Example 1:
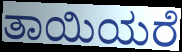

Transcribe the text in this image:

ತಾಯಿಯರೆ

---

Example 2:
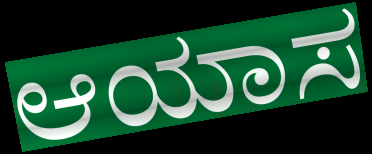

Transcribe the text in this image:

ಆಯಾಸ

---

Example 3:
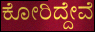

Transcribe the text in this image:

ಕೋರಿದ್ದೇವೆ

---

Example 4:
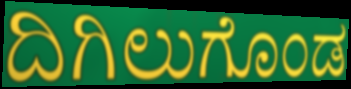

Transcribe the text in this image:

ದಿಗಿಲುಗೊಂಡ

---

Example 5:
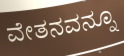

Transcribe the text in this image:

ವೇತನವನ್ನೂ